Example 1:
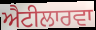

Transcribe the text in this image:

ਐਟੀਲਾਰਵਾ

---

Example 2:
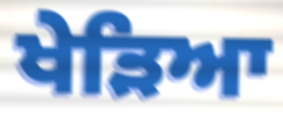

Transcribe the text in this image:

ਖੇੜਿਆ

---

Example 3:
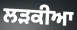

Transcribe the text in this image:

ਲੜਕੀਆ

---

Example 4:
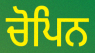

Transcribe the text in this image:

ਚੋਪਿਨ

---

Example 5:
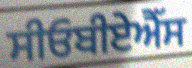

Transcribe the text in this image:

ਸੀਓਬੀਏਐੱਸ